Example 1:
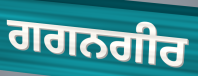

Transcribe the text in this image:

ਗਗਨਗੀਰ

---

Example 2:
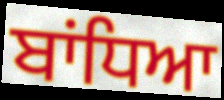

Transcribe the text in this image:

ਬਾਂਧਿਆ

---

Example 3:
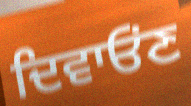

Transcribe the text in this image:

ਦਿਵਾਓੰਣ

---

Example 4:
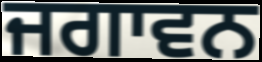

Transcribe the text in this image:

ਜਗਾਵਨ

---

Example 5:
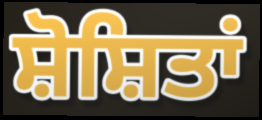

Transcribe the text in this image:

ਸ਼ੋਸ਼ਿਤਾਂ